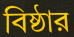
বিষ্ঠার